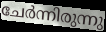
ചേർന്നിരുന്നു